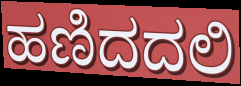
ಹಣಿದದಲಿ